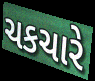
ચકચારે